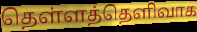
தெள்ளத்தெளிவாக